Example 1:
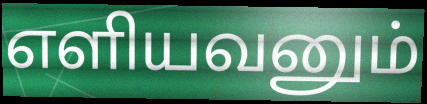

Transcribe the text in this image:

எளியவனும்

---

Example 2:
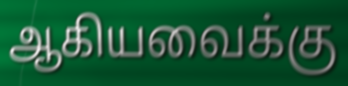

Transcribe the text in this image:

ஆகியவைக்கு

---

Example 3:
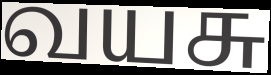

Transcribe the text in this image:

வயசு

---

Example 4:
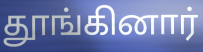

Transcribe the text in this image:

தூங்கினார்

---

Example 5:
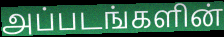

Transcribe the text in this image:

அப்படங்களின்